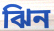
ঝিন